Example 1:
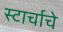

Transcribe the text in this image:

स्टार्चाचे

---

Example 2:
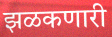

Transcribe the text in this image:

झळकणारी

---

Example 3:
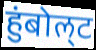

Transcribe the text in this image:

हुंबोल्ट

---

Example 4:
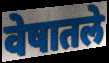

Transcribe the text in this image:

वेषातले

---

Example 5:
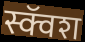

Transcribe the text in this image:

स्क्वॅश